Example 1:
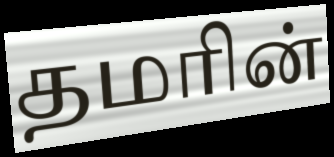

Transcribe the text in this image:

தமரின்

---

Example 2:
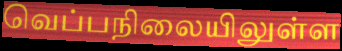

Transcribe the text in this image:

வெப்பநிலையிலுள்ள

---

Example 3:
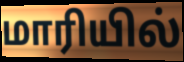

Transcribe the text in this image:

மாரியில்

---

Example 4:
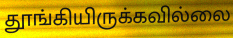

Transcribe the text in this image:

தூங்கியிருக்கவில்லை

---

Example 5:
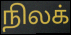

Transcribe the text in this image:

நிலக்